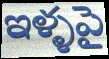
ఇళ్ళపై